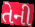
તેની